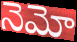
నెమో